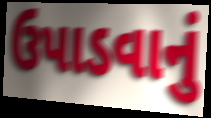
ઉપાડવાનું